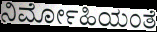
ನಿರ್ಮೋಹಿಯಂತೆ